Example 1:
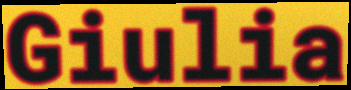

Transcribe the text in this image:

Giulia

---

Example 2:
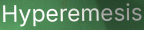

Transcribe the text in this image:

Hyperemesis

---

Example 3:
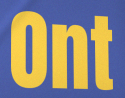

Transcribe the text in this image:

Ont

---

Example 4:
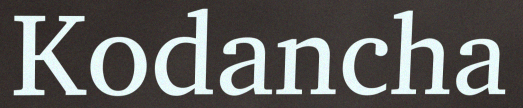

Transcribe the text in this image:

Kodancha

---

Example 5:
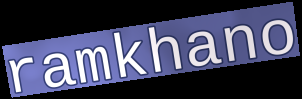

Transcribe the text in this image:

ramkhano